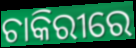
ଚାକିରୀରେ